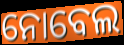
ନୋବେଲ